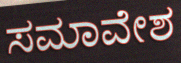
ಸಮಾವೇಶ